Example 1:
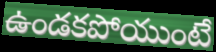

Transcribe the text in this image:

ఉండకపోయుంటే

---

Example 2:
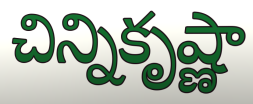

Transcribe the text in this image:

చిన్నికృష్ణా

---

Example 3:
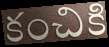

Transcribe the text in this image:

కంచికి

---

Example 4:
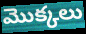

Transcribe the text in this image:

మొక్కలు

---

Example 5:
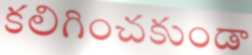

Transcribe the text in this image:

కలిగించకుండా